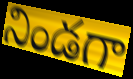
నిండగా